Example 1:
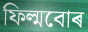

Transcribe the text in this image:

ফিল্মবোৰ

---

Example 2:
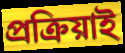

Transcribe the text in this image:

প্ৰক্ৰিয়াই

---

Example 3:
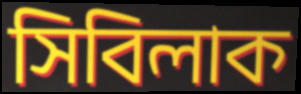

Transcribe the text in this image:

সিবিলাক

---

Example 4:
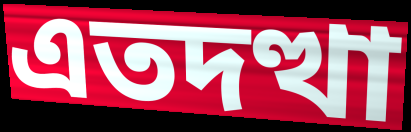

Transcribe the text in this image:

এতদত্থা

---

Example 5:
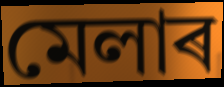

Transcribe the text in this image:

মেলাৰ